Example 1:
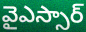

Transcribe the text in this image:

వైఎస్సార్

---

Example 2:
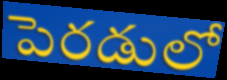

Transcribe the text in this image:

పెరడులో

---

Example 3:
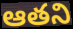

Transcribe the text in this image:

ఆతని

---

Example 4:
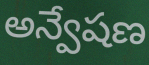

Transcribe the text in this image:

అన్వేషణ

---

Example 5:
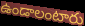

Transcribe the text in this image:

ఉండాలంటారు